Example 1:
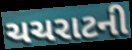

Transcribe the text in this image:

ચચરાટની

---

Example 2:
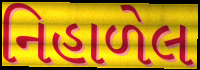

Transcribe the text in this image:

નિહાળેલ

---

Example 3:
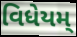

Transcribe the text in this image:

વિધેયમ્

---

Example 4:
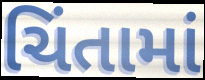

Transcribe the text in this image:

ચિંતામાં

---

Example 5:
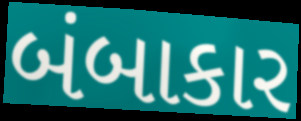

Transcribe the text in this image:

બંબાકાર